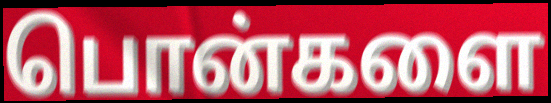
பொன்களை